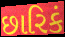
છારિકં